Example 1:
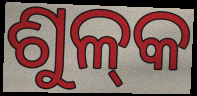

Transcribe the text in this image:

ଶୁଳ୍‌କ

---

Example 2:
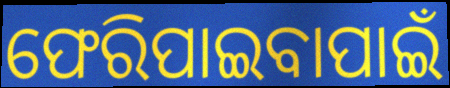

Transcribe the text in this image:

ଫେରିପାଇବାପାଇଁ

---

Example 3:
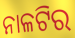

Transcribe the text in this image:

ନାଳଟିର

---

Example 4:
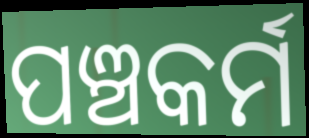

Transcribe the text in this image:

ପଞ୍ଚକର୍ମ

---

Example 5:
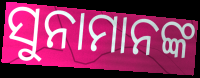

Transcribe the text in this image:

ସୁନାମାନଙ୍କ